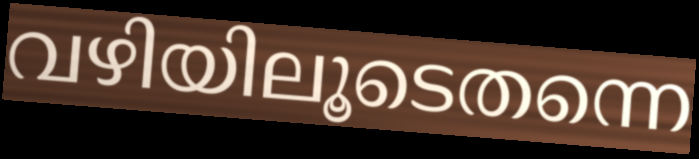
വഴിയിലൂടെതന്നെ